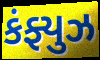
કંફ્યુઝ